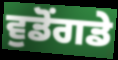
ਵੁਡੋਂਗਡੇ